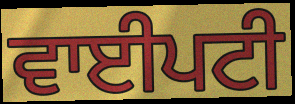
ਵਾਈਪਟੀ